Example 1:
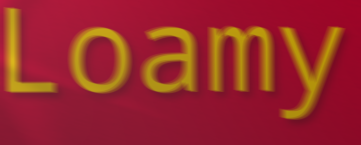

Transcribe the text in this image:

Loamy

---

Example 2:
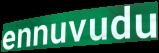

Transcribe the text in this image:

ennuvudu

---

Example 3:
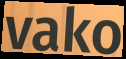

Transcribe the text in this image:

vako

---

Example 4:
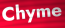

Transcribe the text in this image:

Chyme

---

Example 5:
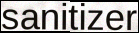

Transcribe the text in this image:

sanitizer